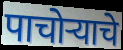
पाचोऱ्याचे